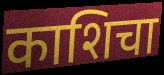
काशिचा